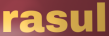
rasul